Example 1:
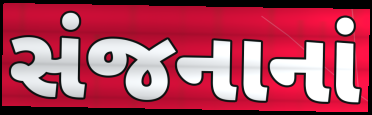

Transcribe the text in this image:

સંજનાનાં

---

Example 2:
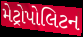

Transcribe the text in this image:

મેટ્રોપોલિટન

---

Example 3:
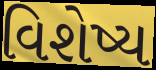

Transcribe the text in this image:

વિશેષ્ય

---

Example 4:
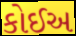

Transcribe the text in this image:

કોઈઅ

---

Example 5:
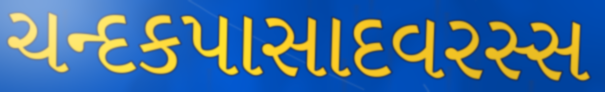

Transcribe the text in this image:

ચન્દકપાસાદવરસ્સ